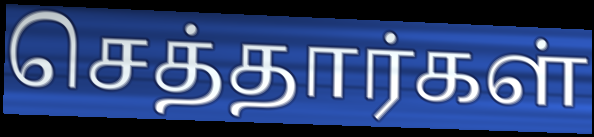
செத்தார்கள்